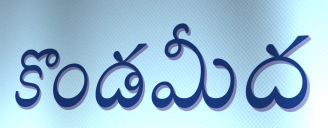
కొండమీద